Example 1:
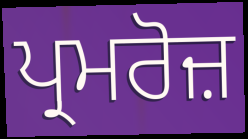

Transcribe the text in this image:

ਪ੍ਰਮਰੋਜ਼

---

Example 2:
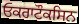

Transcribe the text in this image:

ਓਕਰਾਟੌਕਸਿਨ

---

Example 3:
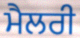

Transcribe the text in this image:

ਮੈਲਰੀ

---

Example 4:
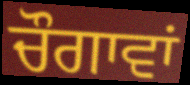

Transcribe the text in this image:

ਚੌਗਾਵਾਂ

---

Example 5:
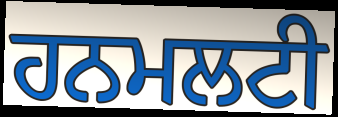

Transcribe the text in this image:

ਹਨਮਲਟੀ